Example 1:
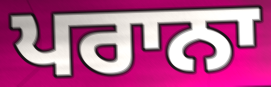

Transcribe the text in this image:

ਪਰਾਨਾ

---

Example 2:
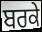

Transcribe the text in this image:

ਬਰਕੇ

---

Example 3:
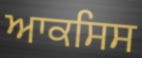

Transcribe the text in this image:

ਆਕਸਿਸ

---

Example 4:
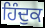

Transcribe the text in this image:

ਹਿੰਦੁਕ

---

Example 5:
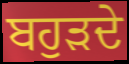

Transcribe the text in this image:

ਬਹੁੜਦੇ